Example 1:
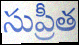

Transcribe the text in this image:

సుప్రీత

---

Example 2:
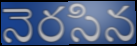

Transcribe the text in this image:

నెరసిన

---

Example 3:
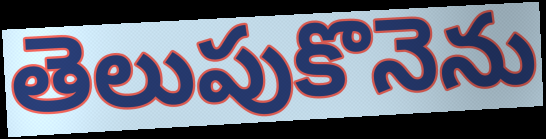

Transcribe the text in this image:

తెలుపుకొనెను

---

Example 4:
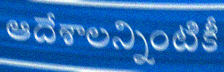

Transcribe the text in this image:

ఆదేశాలన్నింటికీ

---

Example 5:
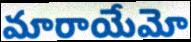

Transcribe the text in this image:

మారాయేమో